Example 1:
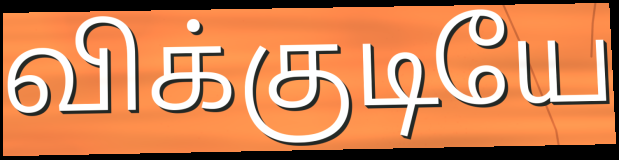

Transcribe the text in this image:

விக்குடியே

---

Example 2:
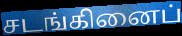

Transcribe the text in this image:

சடங்கினைப்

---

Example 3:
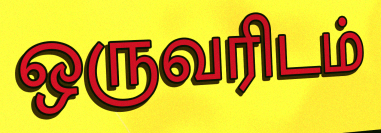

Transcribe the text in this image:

ஒருவரிடம்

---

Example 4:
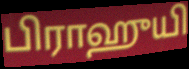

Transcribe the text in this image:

பிராஹுயி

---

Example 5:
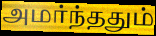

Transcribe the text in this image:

அமர்ந்ததும்